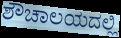
ಶೌಚಾಲಯದಲ್ಲಿ